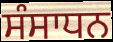
ਸੰਸਾਧਨ